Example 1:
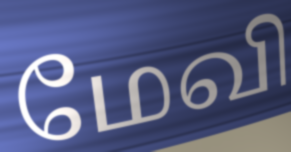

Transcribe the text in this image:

மேவி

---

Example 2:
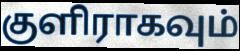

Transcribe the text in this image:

குளிராகவும்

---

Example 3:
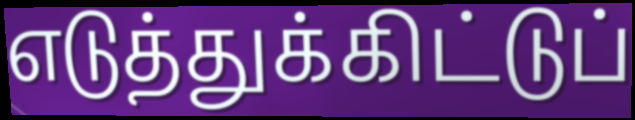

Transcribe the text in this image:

எடுத்துக்கிட்டுப்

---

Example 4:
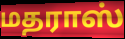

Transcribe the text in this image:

மதராஸ்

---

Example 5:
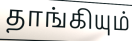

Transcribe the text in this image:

தாங்கியும்